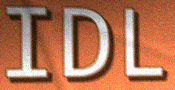
IDL